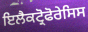
ਇਲੈਕਟ੍ਰੋਫੋਰੇਸਿਸ